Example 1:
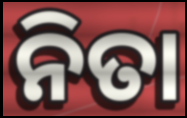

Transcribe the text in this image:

ନିତା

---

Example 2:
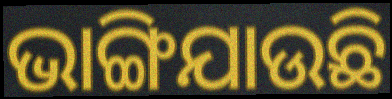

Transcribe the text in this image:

ଭାଙ୍ଗିଯାଉଛି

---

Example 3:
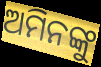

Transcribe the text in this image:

ଅମିନଙ୍କୁ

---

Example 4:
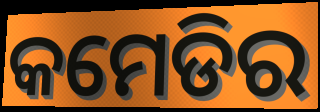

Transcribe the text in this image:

କମେଡିର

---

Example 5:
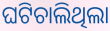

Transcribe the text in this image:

ଘଟିଚାଲିଥିଲା